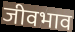
जीवभाव